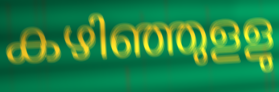
കഴിഞ്ഞുളളു